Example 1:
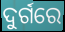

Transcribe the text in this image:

ଦୁର୍ଗରେ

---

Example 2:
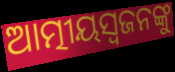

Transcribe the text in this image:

ଆତ୍ମୀୟସ୍ୱଜନଙ୍କୁ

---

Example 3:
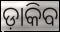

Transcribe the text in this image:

ଡ଼ାକିବ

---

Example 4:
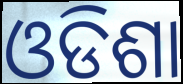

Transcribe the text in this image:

ଓଡିଶା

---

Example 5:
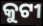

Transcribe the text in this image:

କୁଟୀ